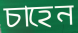
চাহেন